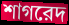
শাগরেদ